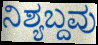
ನಿಶ್ಯಬ್ದವು